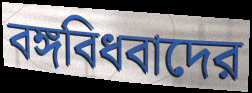
বঙ্গবিধবাদের